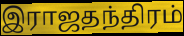
இராஜதந்திரம்